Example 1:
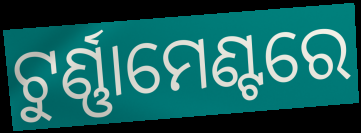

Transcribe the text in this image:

ଟୁର୍ଣ୍ଣାମେଣ୍ଟରେ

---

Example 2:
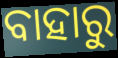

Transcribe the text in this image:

ବାହାରୁ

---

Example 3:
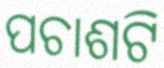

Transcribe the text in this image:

ପଚାଶଟି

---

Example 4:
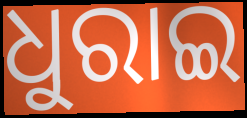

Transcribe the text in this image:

ଧୁରାଇ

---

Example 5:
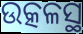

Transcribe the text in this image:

ଉତ୍କଳସ୍ଥ